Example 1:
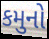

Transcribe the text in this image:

કમુનો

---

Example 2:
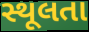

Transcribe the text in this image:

સ્થૂલતા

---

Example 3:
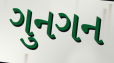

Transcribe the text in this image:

ગુનગન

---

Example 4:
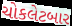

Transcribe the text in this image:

ચોકલેટબાર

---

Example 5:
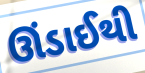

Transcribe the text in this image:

ઊંડાઈથી